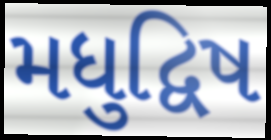
મધુદ્વિષ